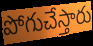
పోగుచేస్తారు